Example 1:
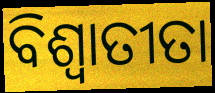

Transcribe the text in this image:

ବିଶ୍ଵାତୀତା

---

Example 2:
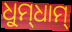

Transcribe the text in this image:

ଧୁମ୍‌ଧାମ୍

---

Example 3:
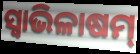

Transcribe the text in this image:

ସ୍ବାଭିଳାଷମ୍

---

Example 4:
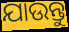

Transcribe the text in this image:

ଯାଉନ୍ତୁ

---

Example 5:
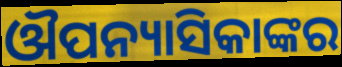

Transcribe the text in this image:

ଔପନ୍ୟାସିକାଙ୍କର